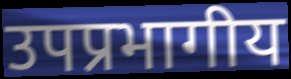
उपप्रभागीय